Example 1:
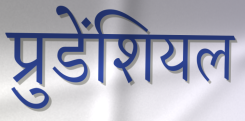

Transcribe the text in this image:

प्रुडेंशियल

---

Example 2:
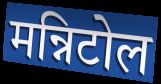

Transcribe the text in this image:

मन्निटोल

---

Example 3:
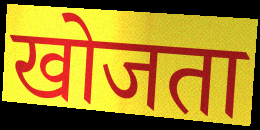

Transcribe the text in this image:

खोजता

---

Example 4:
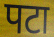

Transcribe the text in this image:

पटा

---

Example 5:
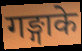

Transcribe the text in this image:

गङ्गाके